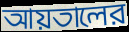
আয়তালের